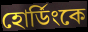
হোর্ডিংকে